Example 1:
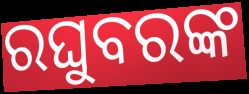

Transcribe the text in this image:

ରଘୁବରଙ୍କ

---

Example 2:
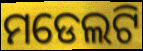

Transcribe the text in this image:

ମଡେଲଟି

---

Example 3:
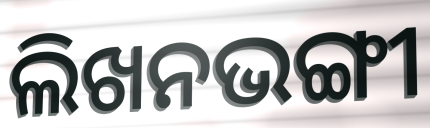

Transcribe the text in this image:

ଲିଖନଭଙ୍ଗୀ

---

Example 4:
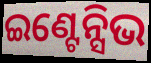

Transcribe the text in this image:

ଇଣ୍ଟେନ୍ସିଭ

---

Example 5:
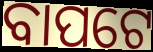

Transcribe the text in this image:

ବାପଟେ